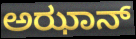
ಅಝಾನ್